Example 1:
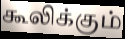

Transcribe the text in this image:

கூலிக்கும்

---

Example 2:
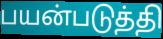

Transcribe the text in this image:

பயன்படுத்தி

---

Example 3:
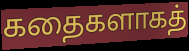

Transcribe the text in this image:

கதைகளாகத்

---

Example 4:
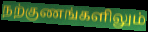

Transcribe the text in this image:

நற்குணங்களிலும்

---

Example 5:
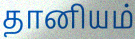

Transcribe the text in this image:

தானியம்